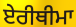
ਏਰੀਥੀਮਾ